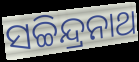
ସଚ୍ଚିନ୍ଦ୍ରନାଥ